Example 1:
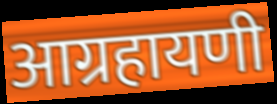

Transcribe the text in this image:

आग्रहायणी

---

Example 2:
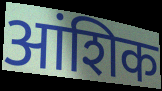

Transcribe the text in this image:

आंशिक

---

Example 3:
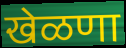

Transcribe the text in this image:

खेळणा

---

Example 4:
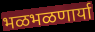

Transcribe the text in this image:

भळभळणार्या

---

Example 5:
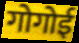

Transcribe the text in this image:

गोगोई